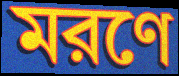
মরণে